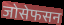
जोसेफसन